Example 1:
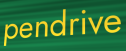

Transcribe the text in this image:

pendrive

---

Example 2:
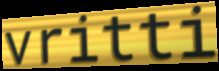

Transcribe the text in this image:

vritti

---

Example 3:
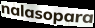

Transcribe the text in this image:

nalasopara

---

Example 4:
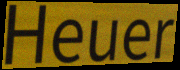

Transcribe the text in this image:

Heuer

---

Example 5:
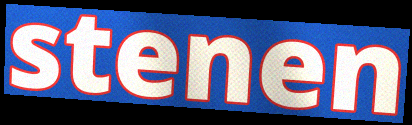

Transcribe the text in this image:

stenen